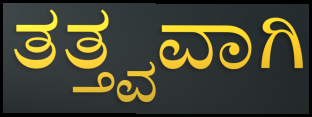
ತತ್ತ್ವವಾಗಿ